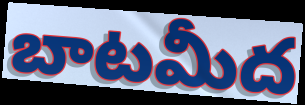
బాటమీద